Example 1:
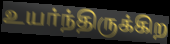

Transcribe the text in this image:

உயர்ந்திருக்கிற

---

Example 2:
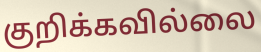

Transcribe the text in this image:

குறிக்கவில்லை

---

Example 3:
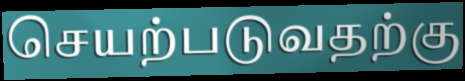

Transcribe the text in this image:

செயற்படுவதற்கு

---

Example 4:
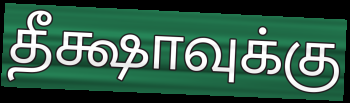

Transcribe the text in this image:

தீக்ஷாவுக்கு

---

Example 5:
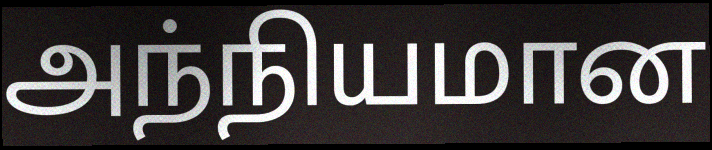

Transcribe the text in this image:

அந்நியமான